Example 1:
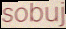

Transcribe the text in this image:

sobuj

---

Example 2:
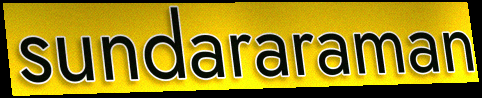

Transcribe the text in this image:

sundararaman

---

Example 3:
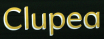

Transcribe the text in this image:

Clupea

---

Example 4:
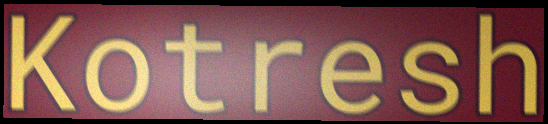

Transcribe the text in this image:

Kotresh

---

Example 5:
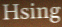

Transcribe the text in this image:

Hsing